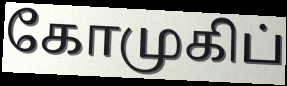
கோமுகிப்